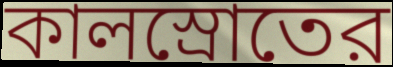
কালস্রোতের